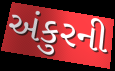
અંકુરની